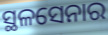
ସ୍ଥଳସେନାର